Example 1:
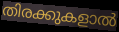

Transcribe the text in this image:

തിരക്കുകളാൽ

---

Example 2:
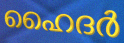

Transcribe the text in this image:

ഹൈദർ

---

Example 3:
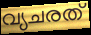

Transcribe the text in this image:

വ്യചരത്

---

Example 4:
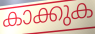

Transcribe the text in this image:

കാക്കുക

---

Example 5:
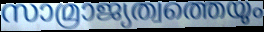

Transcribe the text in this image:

സാമ്രാജ്യത്വത്തെയും